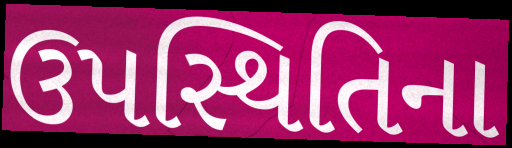
ઉપસ્થિતિના